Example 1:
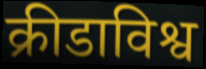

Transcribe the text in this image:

क्रीडाविश्व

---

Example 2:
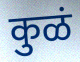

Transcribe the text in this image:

कुळं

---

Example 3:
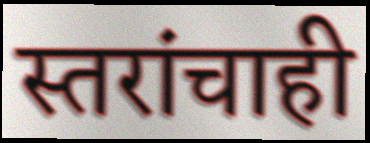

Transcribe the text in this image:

स्तरांचाही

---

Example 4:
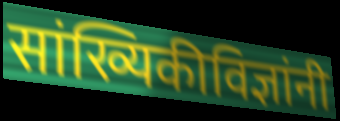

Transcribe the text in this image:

सांख्यिकीविज्ञांनी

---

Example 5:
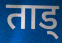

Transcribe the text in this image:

ताड्